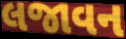
લજાવન